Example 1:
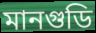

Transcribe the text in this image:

মানগুডি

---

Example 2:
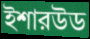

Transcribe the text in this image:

ইশারউড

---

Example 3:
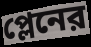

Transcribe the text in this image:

প্লেনের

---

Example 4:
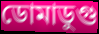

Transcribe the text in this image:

ডোমাডুগু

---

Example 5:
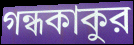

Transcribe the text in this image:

গন্ধকাকুর